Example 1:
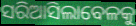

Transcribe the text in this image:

ସରିଆସିଲାବେଳକୁ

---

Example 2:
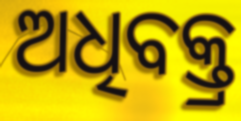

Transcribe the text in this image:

ଅଧିବକ୍ତ୍ର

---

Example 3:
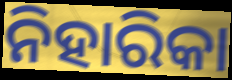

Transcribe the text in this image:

ନିହାରିକା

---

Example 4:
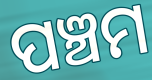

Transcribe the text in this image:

ପଞ୍ଚମ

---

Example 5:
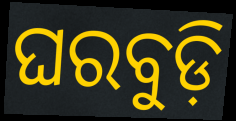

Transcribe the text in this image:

ଘରବୁଡ଼ି